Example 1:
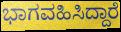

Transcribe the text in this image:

ಭಾಗವಹಿಸಿದ್ದಾರೆ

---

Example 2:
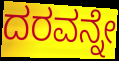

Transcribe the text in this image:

ದರವನ್ನೇ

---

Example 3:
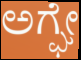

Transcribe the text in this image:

ಅಗ್ಘೇ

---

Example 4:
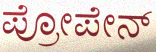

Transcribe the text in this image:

ಪ್ರೋಪೇನ್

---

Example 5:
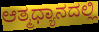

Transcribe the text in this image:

ಆತ್ಮಧ್ಯಾನದಲ್ಲಿ